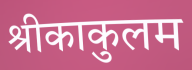
श्रीकाकुलम